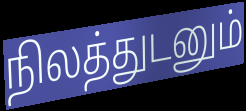
நிலத்துடனும்